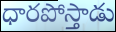
ధారపోస్తాడు